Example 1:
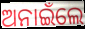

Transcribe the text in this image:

ଅନାଇଁଲେ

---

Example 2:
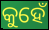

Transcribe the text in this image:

କୁହେଁ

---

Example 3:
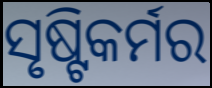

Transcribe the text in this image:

ସୃଷ୍ଟିକର୍ମର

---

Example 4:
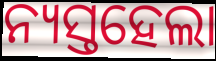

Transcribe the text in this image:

ନ୍ୟସ୍ତହେଲା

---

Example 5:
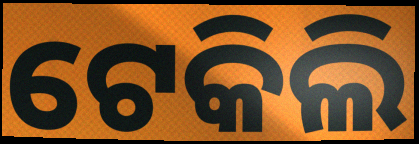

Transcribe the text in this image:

ଟେକିଲି